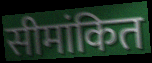
सीमांकित